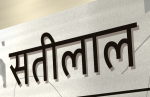
सतीलाल